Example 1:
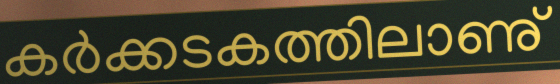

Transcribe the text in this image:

കർക്കടകത്തിലാണു്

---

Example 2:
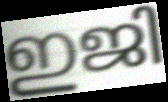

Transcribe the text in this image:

ഇജി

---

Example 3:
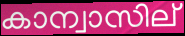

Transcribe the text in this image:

കാന്വാസില്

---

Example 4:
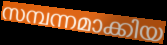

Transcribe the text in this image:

സമ്പന്നമാക്കിയ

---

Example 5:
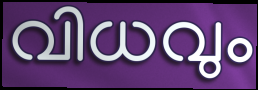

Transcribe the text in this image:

വിധവും